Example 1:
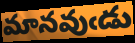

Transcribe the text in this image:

మానవుఁడు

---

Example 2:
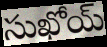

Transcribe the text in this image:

సుఖోయ్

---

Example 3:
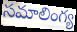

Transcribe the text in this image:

సమాలింగ్య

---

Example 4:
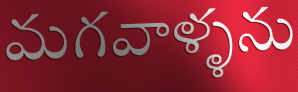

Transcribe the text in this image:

మగవాళ్ళను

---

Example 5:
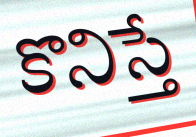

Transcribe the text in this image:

కొనిస్తే